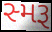
સ્મરૂ